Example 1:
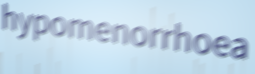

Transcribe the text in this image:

hypomenorrhoea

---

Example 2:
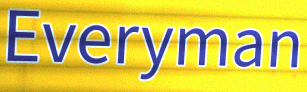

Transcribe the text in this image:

Everyman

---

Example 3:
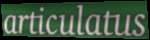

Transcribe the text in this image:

articulatus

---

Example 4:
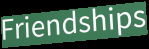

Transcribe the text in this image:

Friendships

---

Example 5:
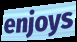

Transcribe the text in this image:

enjoys